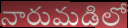
నారుమడిలో